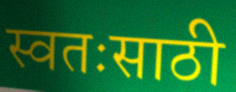
स्वतःसाठी